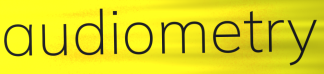
audiometry